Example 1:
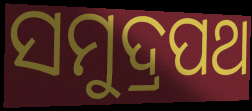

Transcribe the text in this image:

ସମୁଦ୍ରପଥ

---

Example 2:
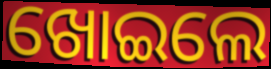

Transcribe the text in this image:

ଖୋଇଲେ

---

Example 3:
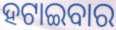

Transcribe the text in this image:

ହଟାଇବାର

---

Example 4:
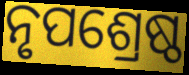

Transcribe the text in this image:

ନୃପଶ୍ରେଷ୍ଠ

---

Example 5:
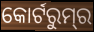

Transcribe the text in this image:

କୋର୍ଟରୁମ୍‌ର